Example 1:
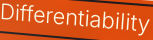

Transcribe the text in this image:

Differentiability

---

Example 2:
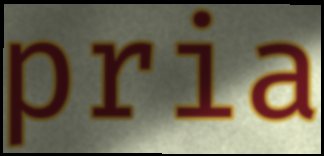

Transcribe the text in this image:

pria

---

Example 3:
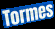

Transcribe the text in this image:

Tormes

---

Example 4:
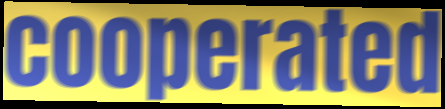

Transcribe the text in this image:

cooperated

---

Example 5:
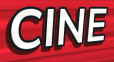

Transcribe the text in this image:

CINE